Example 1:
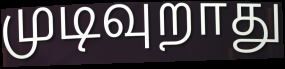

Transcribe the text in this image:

முடிவுறாது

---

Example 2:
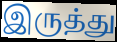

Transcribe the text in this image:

இருத்து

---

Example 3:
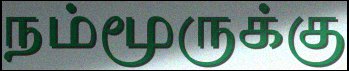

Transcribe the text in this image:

நம்மூருக்கு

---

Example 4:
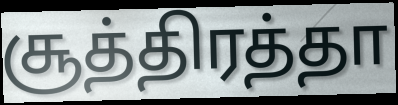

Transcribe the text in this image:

சூத்திரத்தா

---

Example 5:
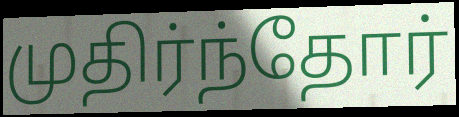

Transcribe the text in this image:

முதிர்ந்தோர்